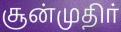
சூன்முதிர்